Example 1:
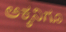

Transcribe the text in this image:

ಅಕ್ಕನಿಗೂ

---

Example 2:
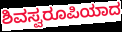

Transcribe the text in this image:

ಶಿವಸ್ವರೂಪಿಯಾದ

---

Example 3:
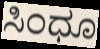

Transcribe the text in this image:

ಸಿಂಧೂ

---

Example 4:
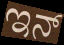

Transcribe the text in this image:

ಇನ್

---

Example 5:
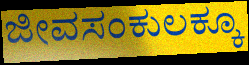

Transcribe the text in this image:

ಜೀವಸಂಕುಲಕ್ಕೂ